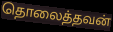
தொலைத்தவன்